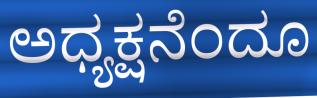
ಅಧ್ಯಕ್ಷನೆಂದೂ